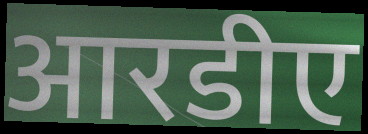
आरडीए